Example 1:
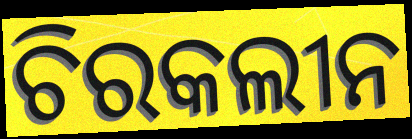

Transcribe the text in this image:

ଚିରକଲୀନ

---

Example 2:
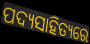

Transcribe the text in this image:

ପଦ୍ୟସାହିତ୍ୟରେ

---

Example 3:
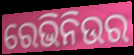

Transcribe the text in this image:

ରେଭିନିଉର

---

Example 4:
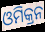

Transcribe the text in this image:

ଓମିକ୍ରନ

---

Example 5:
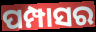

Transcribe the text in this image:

ପମ୍ପାସର